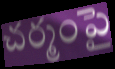
చర్మంపై